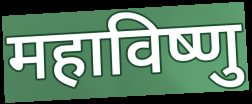
महाविष्णु